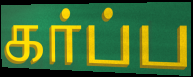
கர்ப்ப